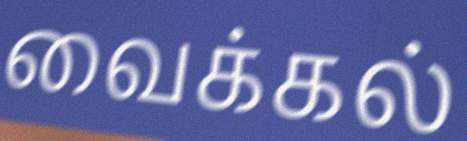
வைக்கல்